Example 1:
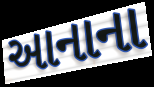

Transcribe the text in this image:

આનાના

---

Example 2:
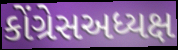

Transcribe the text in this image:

કોંગ્રેસઅધ્યક્ષ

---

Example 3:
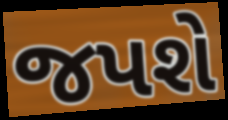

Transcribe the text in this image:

જપશે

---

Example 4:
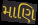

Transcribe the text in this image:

માણિ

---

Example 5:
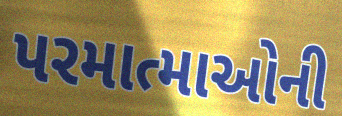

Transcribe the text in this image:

પરમાત્માઓની